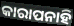
କାରାପନାହି